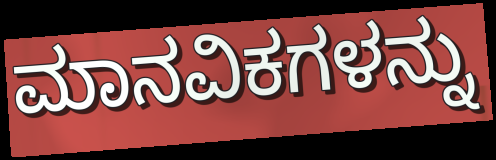
ಮಾನವಿಕಗಳನ್ನು